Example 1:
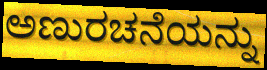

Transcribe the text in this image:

ಅಣುರಚನೆಯನ್ನು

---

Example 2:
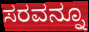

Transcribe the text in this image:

ಸರವನ್ನೂ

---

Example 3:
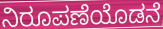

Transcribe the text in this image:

ನಿರೂಪಣೆಯೊಡನೆ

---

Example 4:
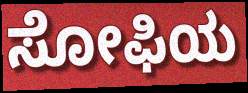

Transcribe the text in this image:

ಸೋಫಿಯ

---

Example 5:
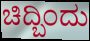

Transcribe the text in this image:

ಚಿದ್ಬಿಂದು